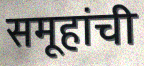
समूहांची